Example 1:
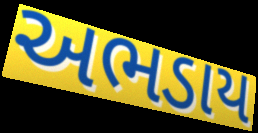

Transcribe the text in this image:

અભડાય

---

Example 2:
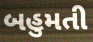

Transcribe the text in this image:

બહુમતી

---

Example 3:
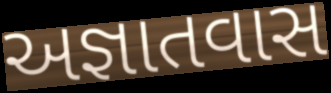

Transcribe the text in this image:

અજ્ઞાતવાસ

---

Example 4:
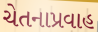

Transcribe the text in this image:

ચેતનાપ્રવાહ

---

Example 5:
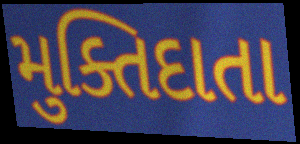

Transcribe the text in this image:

મુક્તિદાતા